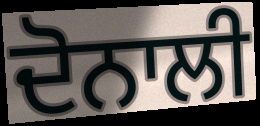
ਦੋਨਾਲੀ